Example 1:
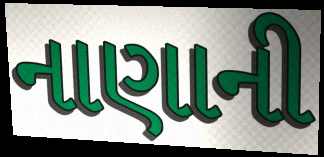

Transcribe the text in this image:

નાણાની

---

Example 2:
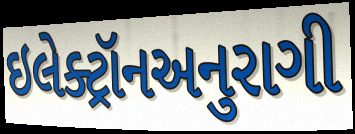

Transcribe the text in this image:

ઇલેક્ટ્રૉનઅનુરાગી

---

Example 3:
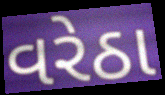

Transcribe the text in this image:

વરેઠા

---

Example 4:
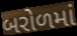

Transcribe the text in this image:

બરોળમાં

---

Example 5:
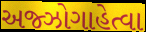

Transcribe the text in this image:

અજ્ઝોગાહેત્વા